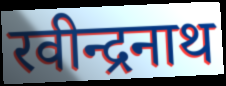
रवीन्द्रनाथ